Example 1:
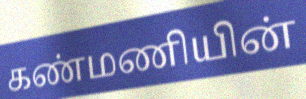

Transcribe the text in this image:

கண்மணியின்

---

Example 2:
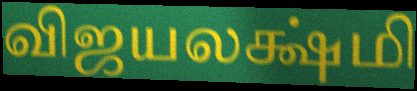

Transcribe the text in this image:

விஜயலக்ஷ்மி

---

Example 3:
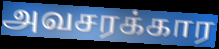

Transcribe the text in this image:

அவசரக்கார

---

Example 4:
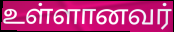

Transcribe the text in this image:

உள்ளானவர்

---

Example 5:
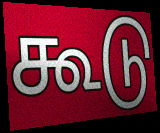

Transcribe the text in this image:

கூடு